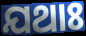
ଯଥାଃ